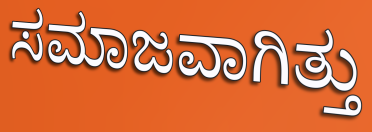
ಸಮಾಜವಾಗಿತ್ತು